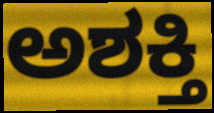
ಅಶಕ್ತಿ